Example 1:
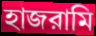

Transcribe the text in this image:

হাজরামি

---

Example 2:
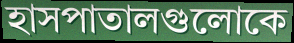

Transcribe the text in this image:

হাসপাতালগুলোকে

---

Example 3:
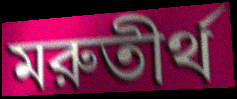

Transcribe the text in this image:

মরুতীর্থ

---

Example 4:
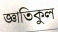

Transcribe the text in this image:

জ্ঞাতিকুল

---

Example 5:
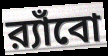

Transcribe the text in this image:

র‍্যাঁবো